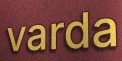
varda